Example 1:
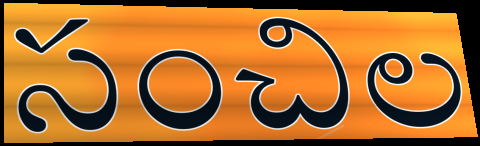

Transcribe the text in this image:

సంచిల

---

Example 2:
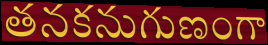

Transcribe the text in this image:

తనకనుగుణంగా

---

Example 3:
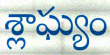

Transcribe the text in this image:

శ్లాఘ్యం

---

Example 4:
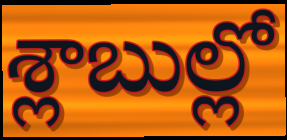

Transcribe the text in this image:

శ్లాబుల్లో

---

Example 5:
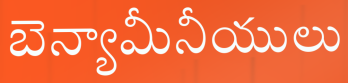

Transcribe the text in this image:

బెన్యామీనీయులు